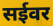
सईवर